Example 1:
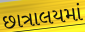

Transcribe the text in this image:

છાત્રાલયમાં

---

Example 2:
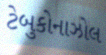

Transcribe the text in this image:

ટેબુકોનાઝોલ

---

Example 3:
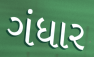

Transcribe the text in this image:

ગંધાર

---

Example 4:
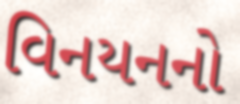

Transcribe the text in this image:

વિનયનનો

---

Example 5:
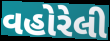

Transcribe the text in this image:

વહોરેલી